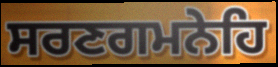
ਸਰਣਗਮਨੇਹਿ